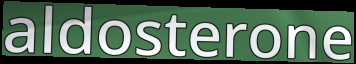
aldosterone